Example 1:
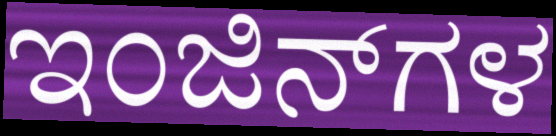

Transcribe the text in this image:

ಇಂಜಿನ್‌ಗಳ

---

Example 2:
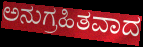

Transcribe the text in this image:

ಅನುಗ್ರಹಿತವಾದ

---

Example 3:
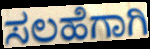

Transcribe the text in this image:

ಸಲಹೆಗಾಗಿ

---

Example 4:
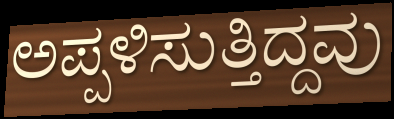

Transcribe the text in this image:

ಅಪ್ಪಳಿಸುತ್ತಿದ್ದವು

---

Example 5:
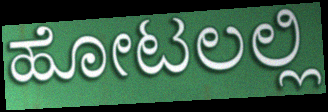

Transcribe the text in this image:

ಹೋಟಲಲ್ಲಿ